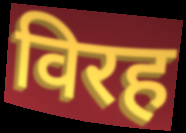
विरह